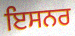
ਇਸਨਰ